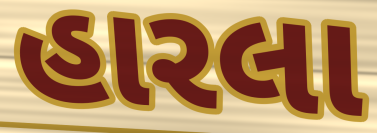
હારલા